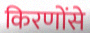
किरणोंसे